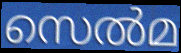
സെൽമ